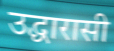
उद्धारासी